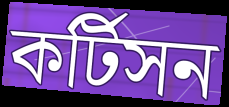
কর্টিসন